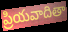
ప్రియవాదితా